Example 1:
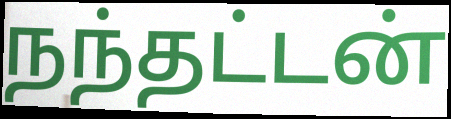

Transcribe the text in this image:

நந்தட்டன்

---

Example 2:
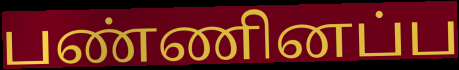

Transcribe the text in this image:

பண்ணினப்ப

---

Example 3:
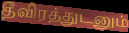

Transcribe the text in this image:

தீவிரத்துடனும்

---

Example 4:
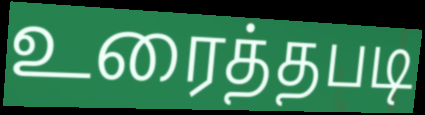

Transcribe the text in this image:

உரைத்தபடி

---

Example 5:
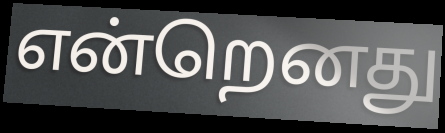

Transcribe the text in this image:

என்றெனது